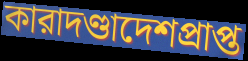
কারাদণ্ডাদেশপ্রাপ্ত